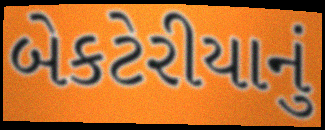
બેકટેરીયાનું